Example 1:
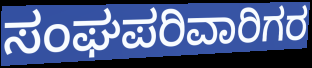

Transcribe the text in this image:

ಸಂಘಪರಿವಾರಿಗರ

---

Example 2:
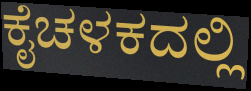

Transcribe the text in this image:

ಕೈಚಳಕದಲ್ಲಿ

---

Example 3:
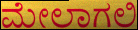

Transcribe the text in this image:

ಮೇಲಾಗಲಿ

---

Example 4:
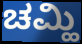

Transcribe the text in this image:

ಚಮ್ಹಿ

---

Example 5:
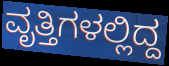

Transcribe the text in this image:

ವೃತ್ತಿಗಳಲ್ಲಿದ್ದ